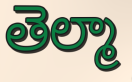
తెల్మా